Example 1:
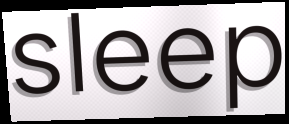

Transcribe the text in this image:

sleep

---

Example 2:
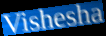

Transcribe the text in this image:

Vishesha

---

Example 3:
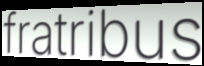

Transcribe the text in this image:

fratribus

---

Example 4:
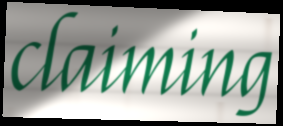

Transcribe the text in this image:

claiming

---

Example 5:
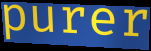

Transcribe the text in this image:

purer